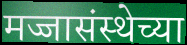
मज्जासंस्थेच्या